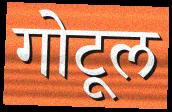
गोटूल